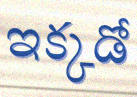
ఇక్కడో